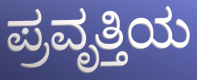
ಪ್ರವೃತ್ತಿಯ